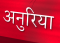
अनुरिया